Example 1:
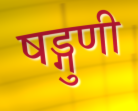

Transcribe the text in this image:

षड्गुणी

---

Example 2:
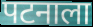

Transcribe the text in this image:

पटनाला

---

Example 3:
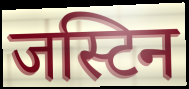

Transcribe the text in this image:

जस्टिन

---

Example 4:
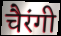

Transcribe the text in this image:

चैरंगी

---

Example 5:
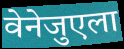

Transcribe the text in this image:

वेनेजुएला